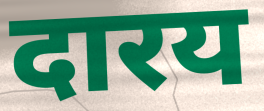
दारय